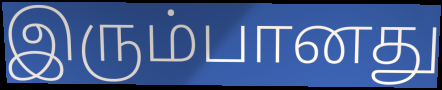
இரும்பானது